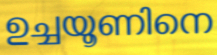
ഉച്ചയൂണിനെ